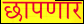
छापणार